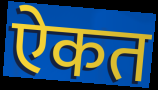
ऐकत